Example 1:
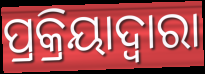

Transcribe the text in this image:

ପ୍ରକ୍ରିୟାଦ୍ଵାରା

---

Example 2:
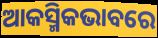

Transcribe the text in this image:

ଆକସ୍ମିକଭାବରେ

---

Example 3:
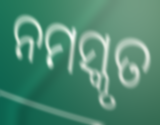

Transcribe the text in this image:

ନମସ୍କୃତ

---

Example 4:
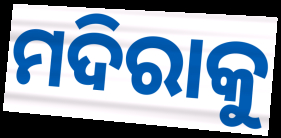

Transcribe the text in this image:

ମଦିରାକୁ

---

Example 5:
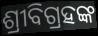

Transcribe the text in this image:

ଶ୍ରୀବିଗ୍ରହଙ୍କ